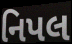
નિપલ